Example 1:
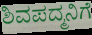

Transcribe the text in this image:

ಶಿವಪದ್ಮನಿಗೆ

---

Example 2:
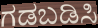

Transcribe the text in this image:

ಗಡಬಡಿಸಿ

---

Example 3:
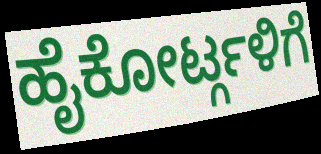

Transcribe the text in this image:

ಹೈಕೋರ್ಟ್ಗಳಿಗೆ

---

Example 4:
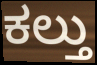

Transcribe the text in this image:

ಕಲ್ತು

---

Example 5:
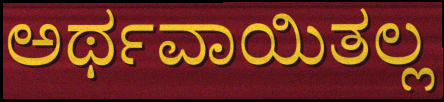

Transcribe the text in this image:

ಅರ್ಥವಾಯಿತಲ್ಲ